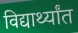
विद्यार्थ्यांत